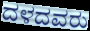
ದಳದವರು